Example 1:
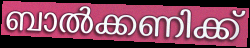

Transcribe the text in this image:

ബാൽക്കണിക്ക്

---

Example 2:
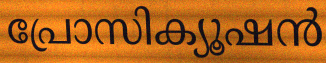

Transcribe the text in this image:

പ്രോസിക്യൂഷൻ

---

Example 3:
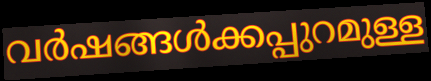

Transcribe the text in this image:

വർഷങ്ങൾക്കപ്പുറമുള്ള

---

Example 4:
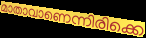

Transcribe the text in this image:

മാതാവാണെന്നിരിക്കെ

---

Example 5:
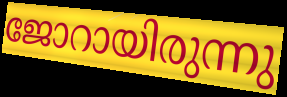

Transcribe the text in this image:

ജോറായിരുന്നു